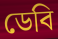
ডেবি